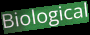
Biological